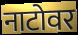
नाटोवर